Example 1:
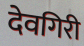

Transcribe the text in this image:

देवगिरी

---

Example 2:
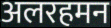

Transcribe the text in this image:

अलरहमन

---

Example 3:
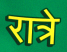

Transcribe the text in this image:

रात्रे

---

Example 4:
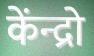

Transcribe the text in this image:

केंन्द्रो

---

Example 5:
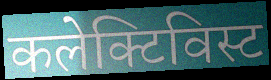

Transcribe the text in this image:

कलेक्टिविस्ट